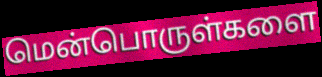
மென்பொருள்களை